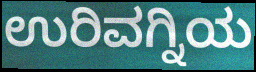
ಉರಿವಗ್ನಿಯ